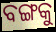
ବଙ୍ଗକୁ